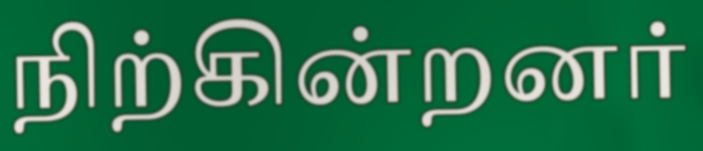
நிற்கின்றனர்